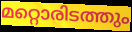
മറ്റൊരിടത്തും